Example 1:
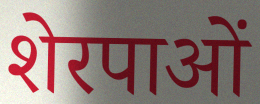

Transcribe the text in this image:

शेरपाओं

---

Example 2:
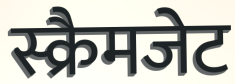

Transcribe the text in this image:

स्‍क्रैमजेट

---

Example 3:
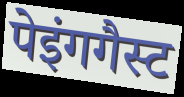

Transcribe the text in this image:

पेइंगगैस्ट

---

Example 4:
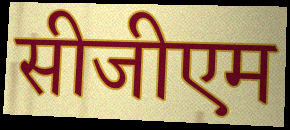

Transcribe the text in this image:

सीजीएम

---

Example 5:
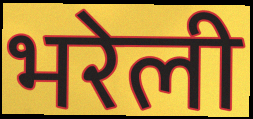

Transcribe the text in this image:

भरेली